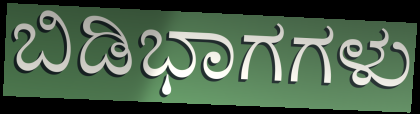
ಬಿಡಿಭಾಗಗಳು